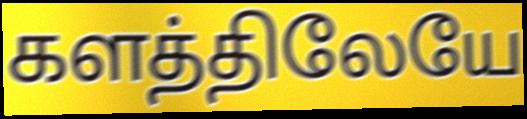
களத்திலேயே